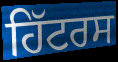
ਹਿੱਟਰਸ